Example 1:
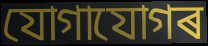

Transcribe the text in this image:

যোগাযোগৰ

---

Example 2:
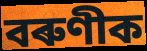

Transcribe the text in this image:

বৰুণীক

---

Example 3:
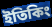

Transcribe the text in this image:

ইতিকিং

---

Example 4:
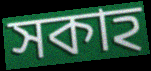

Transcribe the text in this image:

সকাহ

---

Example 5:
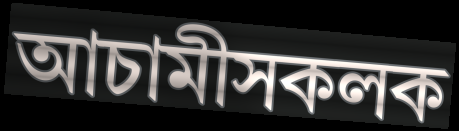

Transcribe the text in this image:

আচামীসকলক